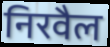
निरवैल